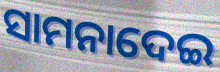
ସାମନାଦେଇ